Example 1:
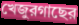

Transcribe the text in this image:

খেজুরগাছের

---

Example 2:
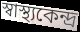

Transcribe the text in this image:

স্বাস্থ্যকেন্দ্র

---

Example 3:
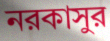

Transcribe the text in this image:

নরকাসুর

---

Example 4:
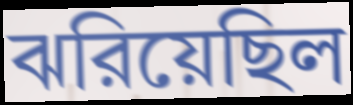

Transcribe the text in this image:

ঝরিয়েছিল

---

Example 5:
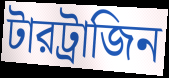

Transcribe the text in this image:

টারট্রাজিন